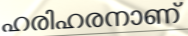
ഹരിഹരനാണ്